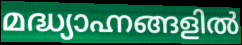
മദ്ധ്യാഹ്നങ്ങളിൽ